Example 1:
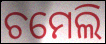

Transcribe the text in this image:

ଚମେଲି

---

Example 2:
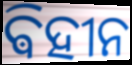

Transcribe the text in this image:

ଵିହୀନ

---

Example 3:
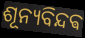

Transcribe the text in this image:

ଶୂନ୍ଯବିନ୍ଦଵ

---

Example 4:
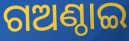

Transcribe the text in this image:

ଗଅଣ୍ଠାଇ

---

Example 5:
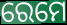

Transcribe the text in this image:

ରେମେ